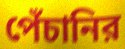
পেঁচানির